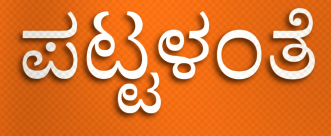
ಪಟ್ಟಳಂತೆ